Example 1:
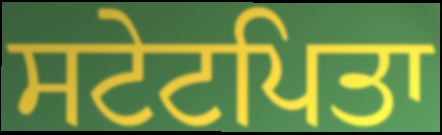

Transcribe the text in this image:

ਸਟੇਟਪਿਤਾ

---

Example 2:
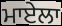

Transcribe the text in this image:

ਮਾਏਲਾ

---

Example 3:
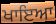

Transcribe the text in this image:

ਖਾਇਆ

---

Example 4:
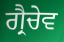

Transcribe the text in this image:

ਗ੍ਰੈਚੇਵ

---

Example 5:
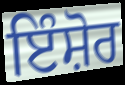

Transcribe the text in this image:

ਇੰਸ਼ੋਰ